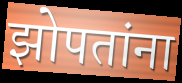
झोपतांना